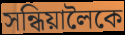
সন্ধিয়ালৈকে